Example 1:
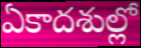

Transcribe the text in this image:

ఏకాదశుల్లో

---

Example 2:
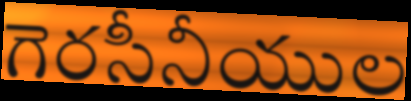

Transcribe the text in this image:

గెరసీనీయుల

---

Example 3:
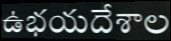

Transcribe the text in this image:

ఉభయదేశాల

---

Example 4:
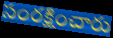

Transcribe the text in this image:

సంరక్షించారు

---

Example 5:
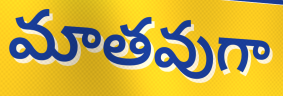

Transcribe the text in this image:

మాతవుగా